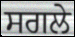
ਸਗਲੇ